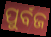
ପୁର୍ବଜ